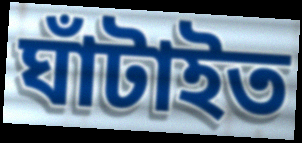
ঘাঁটাইত